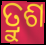
ତ୍ରୁଶ